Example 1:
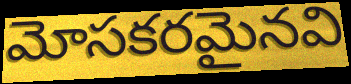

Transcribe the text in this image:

మోసకరమైనవి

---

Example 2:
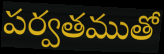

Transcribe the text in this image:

పర్వతముతో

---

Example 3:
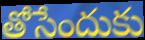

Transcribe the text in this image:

తోసేందుకు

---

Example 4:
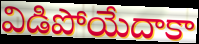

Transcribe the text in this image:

విడిపోయేదాకా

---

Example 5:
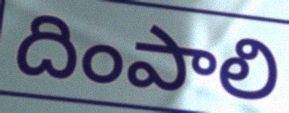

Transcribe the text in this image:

దింపాలి